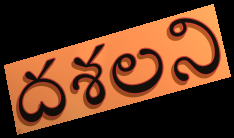
దశలని